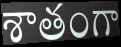
శాతంగా